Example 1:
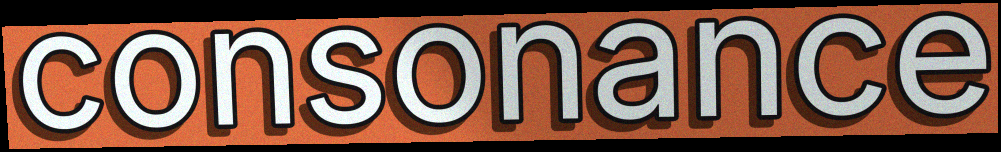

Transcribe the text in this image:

consonance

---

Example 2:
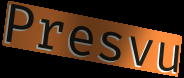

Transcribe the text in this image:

Presvu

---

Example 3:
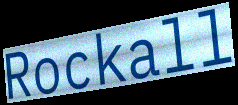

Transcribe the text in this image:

Rockall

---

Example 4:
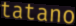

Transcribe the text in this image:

tatano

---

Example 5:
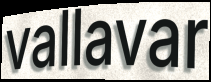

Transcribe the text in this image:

vallavar